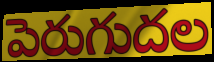
పెరుగుదల